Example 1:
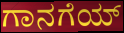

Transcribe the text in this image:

ಗಾನಗೆಯ್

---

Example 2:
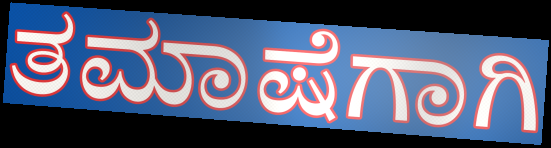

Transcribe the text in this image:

ತಮಾಷೆಗಾಗಿ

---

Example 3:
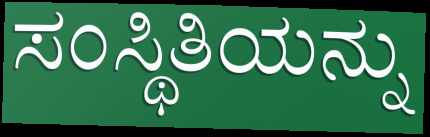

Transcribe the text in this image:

ಸಂಸ್ಥಿತಿಯನ್ನು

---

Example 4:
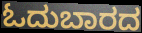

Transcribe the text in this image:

ಓದುಬಾರದ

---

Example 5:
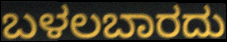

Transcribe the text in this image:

ಬಳಲಬಾರದು